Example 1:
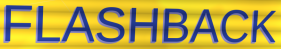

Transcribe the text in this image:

FLASHBACK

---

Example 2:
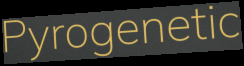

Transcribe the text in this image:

Pyrogenetic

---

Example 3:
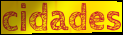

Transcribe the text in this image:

cidades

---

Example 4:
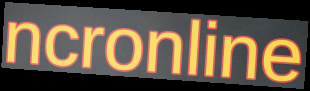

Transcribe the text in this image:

ncronline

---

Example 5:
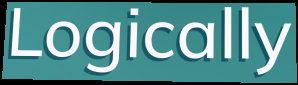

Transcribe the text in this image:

Logically